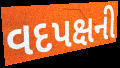
વદપક્ષની